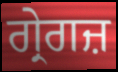
ਗ੍ਰੇਗਜ਼